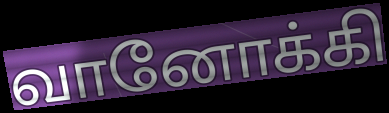
வானோக்கி